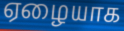
ஏழையாக